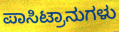
ಪಾಸಿಟ್ರಾನುಗಳು